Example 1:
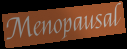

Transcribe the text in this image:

Menopausal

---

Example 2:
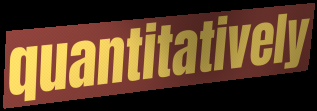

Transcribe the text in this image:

quantitatively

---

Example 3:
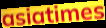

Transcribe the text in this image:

asiatimes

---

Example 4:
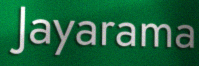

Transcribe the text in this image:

Jayarama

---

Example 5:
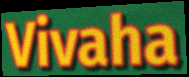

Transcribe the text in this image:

Vivaha